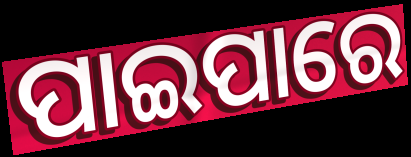
ପାଇପାରେ